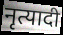
नृत्यादी